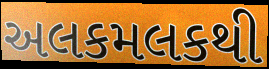
અલકમલકથી